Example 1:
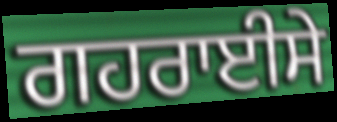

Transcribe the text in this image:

ਗਹਰਾਈਸੇ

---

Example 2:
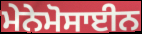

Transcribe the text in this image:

ਮੇਨੇਮੋਸਾਈਨ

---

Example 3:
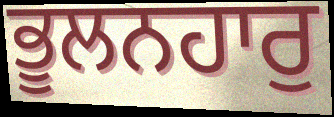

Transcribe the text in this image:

ਭੂਲਨਹਾਰੁ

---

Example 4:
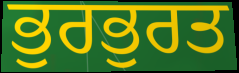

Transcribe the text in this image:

ਭੁਰਭੁਰਤ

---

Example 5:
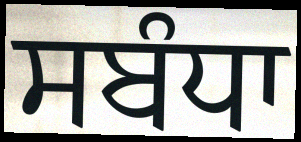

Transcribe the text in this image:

ਸਬੰਧਾ